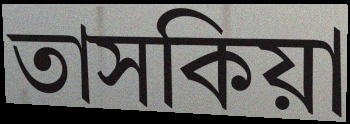
তাসকিয়া